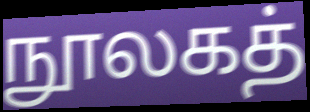
நூலகத்